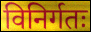
विनिर्गतः